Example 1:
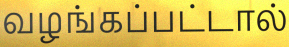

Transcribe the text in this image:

வழங்கப்பட்டால்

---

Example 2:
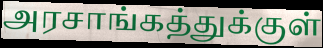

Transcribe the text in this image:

அரசாங்கத்துக்குள்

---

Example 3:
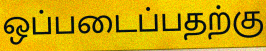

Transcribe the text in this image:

ஒப்படைப்பதற்கு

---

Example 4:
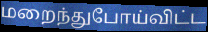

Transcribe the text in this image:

மறைந்துபோய்விட்ட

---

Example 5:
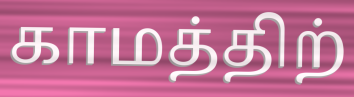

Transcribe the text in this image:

காமத்திற்